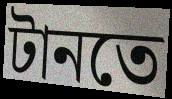
টানতে